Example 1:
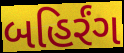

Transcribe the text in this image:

બહિર્રંગ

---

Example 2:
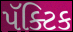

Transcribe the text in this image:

પૅક્ટિક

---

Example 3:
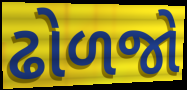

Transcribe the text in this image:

ઢોળજો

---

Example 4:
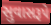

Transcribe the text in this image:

સુવાસરૂપે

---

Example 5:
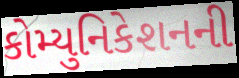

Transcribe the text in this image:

કોમ્યુનિકેશનની